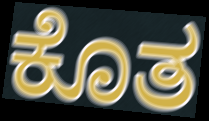
ಕೊತ